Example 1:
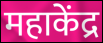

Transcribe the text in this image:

महाकेंद्र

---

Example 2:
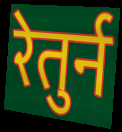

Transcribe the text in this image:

रेतुर्न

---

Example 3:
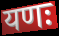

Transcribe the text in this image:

यणः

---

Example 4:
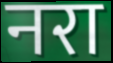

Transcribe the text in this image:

नरा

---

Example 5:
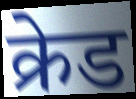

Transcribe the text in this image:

क्रेड